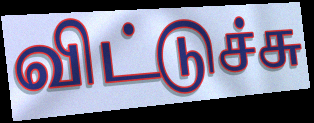
விட்டுச்சு